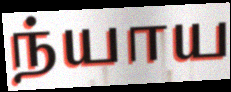
ந்யாய